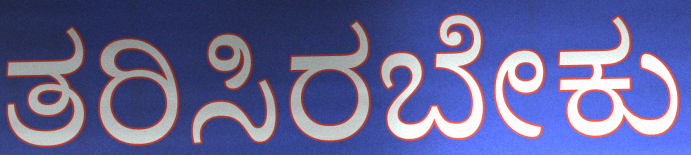
ತರಿಸಿರಬೇಕು